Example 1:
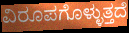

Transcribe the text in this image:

ವಿರೂಪಗೊಳ್ಳುತ್ತದೆ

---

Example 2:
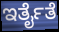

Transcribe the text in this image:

ಇರ್ತೈತೆ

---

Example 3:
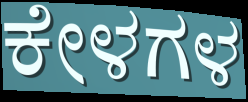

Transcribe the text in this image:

ಕೇಳಗಳ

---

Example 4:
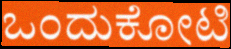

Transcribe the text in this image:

ಒಂದುಕೋಟಿ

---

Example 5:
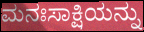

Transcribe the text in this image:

ಮನಃಸಾಕ್ಷಿಯನ್ನು